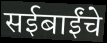
सईबाईंचे